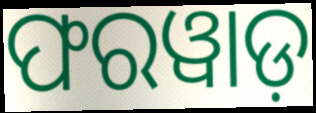
ଫରୱାଡ଼